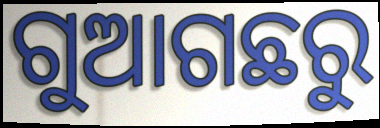
ଗୁଆଗଛରୁ